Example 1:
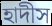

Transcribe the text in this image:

হাদীস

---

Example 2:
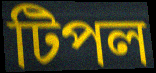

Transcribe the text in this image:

টিপল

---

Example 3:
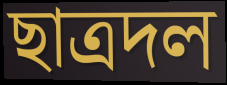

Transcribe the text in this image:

ছাত্রদল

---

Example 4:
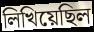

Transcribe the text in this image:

লিখিয়েছিল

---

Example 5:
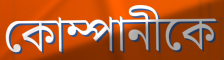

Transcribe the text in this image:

কোম্পানীকে